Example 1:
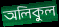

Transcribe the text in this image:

অলিকুল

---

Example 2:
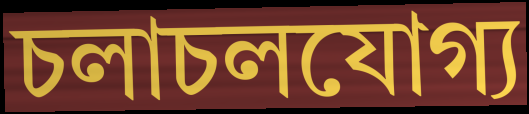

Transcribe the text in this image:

চলাচলযোগ্য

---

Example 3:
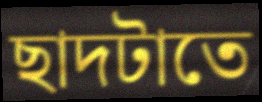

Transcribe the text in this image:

ছাদটাতে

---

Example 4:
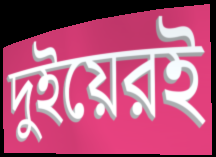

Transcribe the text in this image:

দুইয়েরই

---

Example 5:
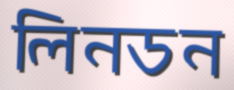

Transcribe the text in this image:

লিনডন